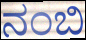
ನಂಬಿ